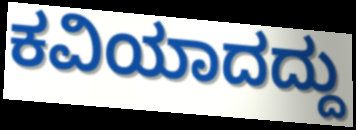
ಕವಿಯಾದದ್ದು